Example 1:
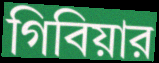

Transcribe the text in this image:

গিবিয়ার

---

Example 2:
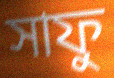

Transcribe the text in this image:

সাফু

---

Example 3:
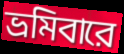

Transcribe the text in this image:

ভ্রমিবারে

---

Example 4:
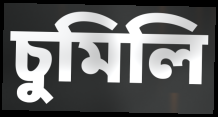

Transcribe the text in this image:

চুমিলি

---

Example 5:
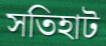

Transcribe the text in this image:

সতিহাট